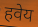
हवेय